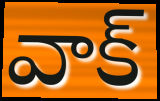
వాక్